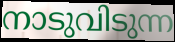
നാടുവിടുന്ന